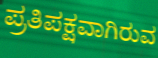
ಪ್ರತಿಪಕ್ಷವಾಗಿರುವ